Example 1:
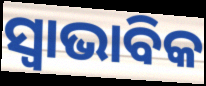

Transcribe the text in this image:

ସ୍ଵାଭାବିକ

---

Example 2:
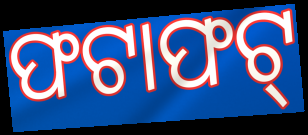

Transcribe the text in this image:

ଫଟାଫଟ୍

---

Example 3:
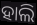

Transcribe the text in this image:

ହାଲି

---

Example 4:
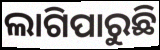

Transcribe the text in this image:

ଲାଗିପାରୁଛି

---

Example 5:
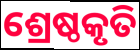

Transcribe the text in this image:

ଶ୍ରେଷ୍ଠକୃତି